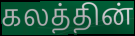
கலத்தின்